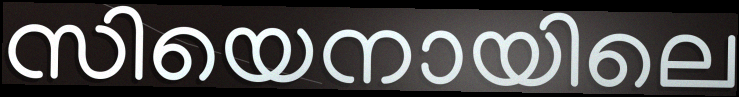
സിയെനായിലെ